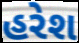
હરેશ